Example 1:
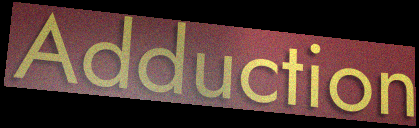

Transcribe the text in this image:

Adduction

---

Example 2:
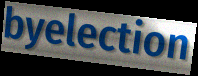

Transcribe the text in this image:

byelection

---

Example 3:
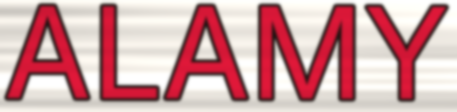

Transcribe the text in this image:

ALAMY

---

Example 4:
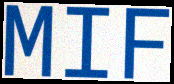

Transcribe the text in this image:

MIF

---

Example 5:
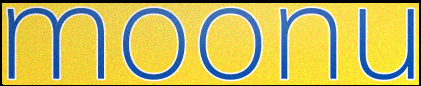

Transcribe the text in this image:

moonu